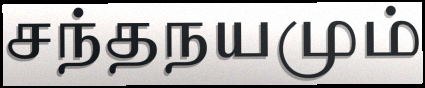
சந்தநயமும்